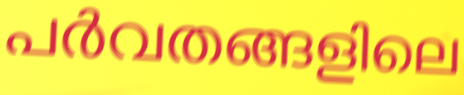
പർവതങ്ങളിലെ